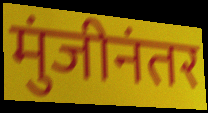
मुंजीनंतर